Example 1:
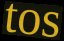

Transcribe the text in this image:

tos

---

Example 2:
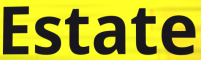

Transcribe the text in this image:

Estate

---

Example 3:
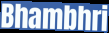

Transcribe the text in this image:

Bhambhri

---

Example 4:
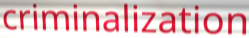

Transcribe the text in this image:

criminalization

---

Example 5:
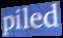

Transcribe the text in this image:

piled